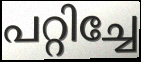
പറ്റിച്ചേ